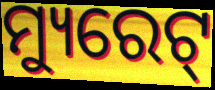
ମ୍ୟୁରେଟ୍